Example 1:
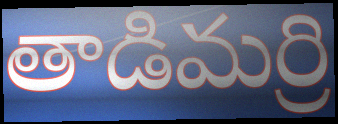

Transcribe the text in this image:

తాడిమర్రి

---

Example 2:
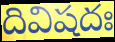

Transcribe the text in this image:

దివిషదః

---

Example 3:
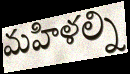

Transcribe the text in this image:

మహిళల్ని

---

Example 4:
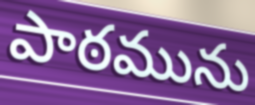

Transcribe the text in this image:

పాఠమును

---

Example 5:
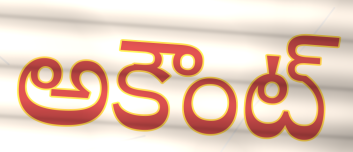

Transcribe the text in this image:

అకౌంట్